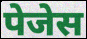
पेजेस